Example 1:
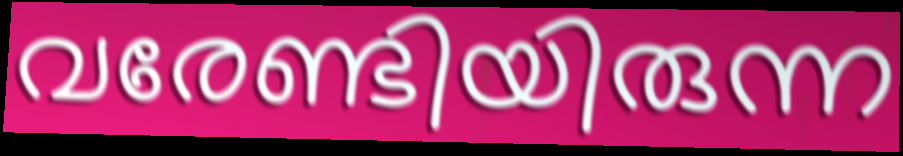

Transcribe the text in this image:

വരേണ്ടിയിരുന്ന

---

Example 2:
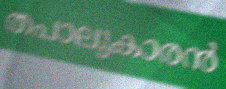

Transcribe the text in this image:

തപാലുകാരൻ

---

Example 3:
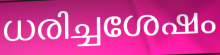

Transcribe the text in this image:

ധരിച്ചശേഷം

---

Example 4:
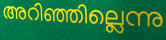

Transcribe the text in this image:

അറിഞ്ഞില്ലെന്നു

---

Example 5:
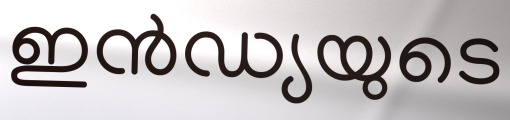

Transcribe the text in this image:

ഇൻഡ്യയുടെ